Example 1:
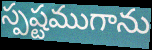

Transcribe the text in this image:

స్పష్టముగాను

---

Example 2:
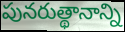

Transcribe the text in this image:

పునరుత్థానాన్ని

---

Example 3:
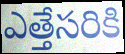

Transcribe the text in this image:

ఎత్తేసరికి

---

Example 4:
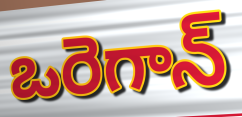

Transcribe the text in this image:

ఒరెగాన్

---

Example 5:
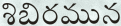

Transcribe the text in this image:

శిబిరమున